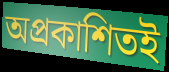
অপ্রকাশিতই